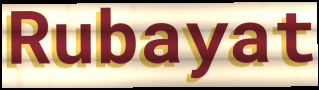
Rubayat